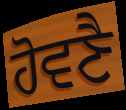
ਹੋਵਣੈ